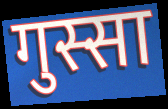
गुस्सा